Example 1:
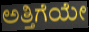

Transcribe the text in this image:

ಅತ್ತಿಗೆಯೇ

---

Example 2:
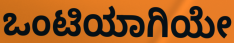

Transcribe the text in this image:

ಒಂಟಿಯಾಗಿಯೇ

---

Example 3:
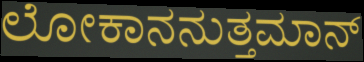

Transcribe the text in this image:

ಲೋಕಾನನುತ್ತಮಾನ್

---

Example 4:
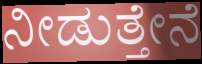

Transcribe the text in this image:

ನೀಡುತ್ತೇನೆ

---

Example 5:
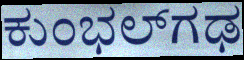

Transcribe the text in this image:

ಕುಂಭಲ್‌ಗಢ